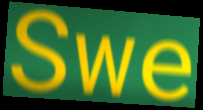
Swe